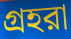
গ্রহরা